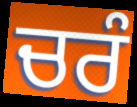
ਚਰੰ